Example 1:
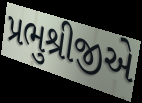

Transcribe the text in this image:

પ્રભુશ્રીજીએ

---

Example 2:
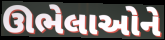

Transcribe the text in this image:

ઊભેલાઓને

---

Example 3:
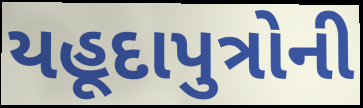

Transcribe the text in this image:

યહૂદાપુત્રોની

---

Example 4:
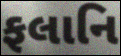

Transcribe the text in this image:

ફલાનિ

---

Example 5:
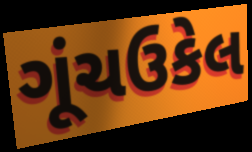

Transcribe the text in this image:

ગૂંચઉકેલ